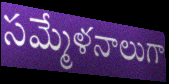
సమ్మేళనాలుగా